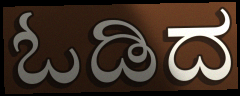
ಓಡಿದ